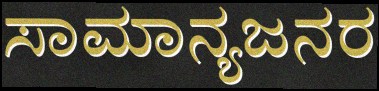
ಸಾಮಾನ್ಯಜನರ